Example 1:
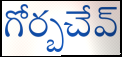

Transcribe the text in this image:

గోర్బచేవ్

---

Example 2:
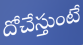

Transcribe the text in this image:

దోచేస్తుంటే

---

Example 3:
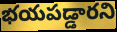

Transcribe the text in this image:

భయపడ్డారని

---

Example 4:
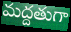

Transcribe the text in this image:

మద్దతుగా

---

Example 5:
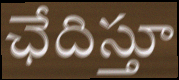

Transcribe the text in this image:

ఛేదిస్తూ